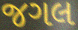
જગલ